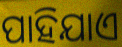
ପାହିଯାଏ